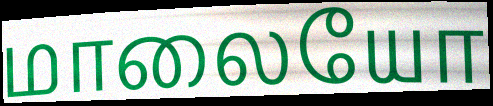
மாலையோ